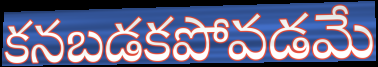
కనబడకపోవడమే